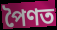
পৈণত